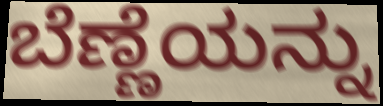
ಬೆಣ್ಣೆಯನ್ನು